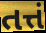
તત્તં